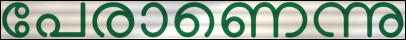
പേരാണെന്നു